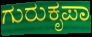
ಗುರುಕೃಪಾ